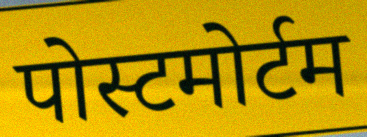
पोस्टमोर्टम